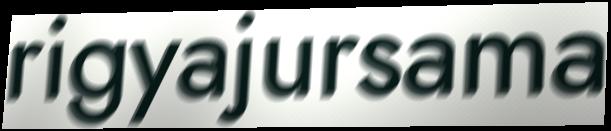
rigyajursama